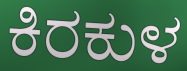
ಕಿರಕುಳ